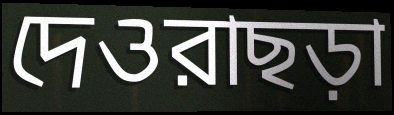
দেওরাছড়া